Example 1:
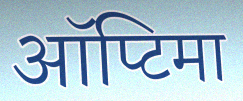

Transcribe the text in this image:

ऑप्टिमा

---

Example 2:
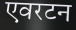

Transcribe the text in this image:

एवरटन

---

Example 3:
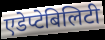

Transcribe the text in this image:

एडेप्टेबिलिटी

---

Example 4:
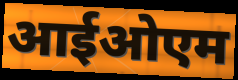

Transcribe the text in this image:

आईओएम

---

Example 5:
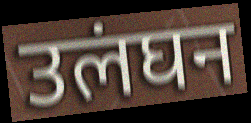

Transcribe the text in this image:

उलंघन